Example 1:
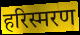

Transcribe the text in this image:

हरिस्मरण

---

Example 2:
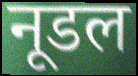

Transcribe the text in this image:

नूडल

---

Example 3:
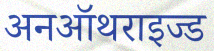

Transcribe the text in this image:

अनऑथराइज्ड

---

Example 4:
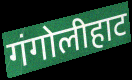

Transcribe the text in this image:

गंगोलीहाट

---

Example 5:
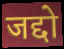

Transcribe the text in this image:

जद्दो